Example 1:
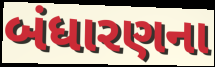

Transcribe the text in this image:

બંધારણના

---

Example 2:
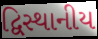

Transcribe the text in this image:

દ્વિસ્થાનીય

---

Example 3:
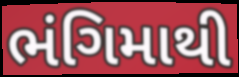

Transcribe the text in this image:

ભંગિમાથી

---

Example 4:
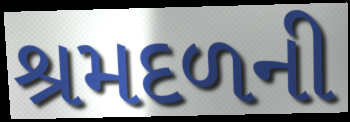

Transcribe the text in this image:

શ્રમદળની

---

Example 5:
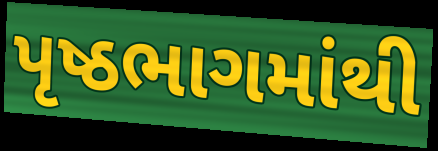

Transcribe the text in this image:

પૃષ્ઠભાગમાંથી